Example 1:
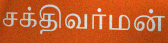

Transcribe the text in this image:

சக்திவர்மன்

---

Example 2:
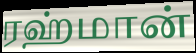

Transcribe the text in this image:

ரஹ்மான்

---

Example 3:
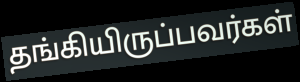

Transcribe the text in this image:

தங்கியிருப்பவர்கள்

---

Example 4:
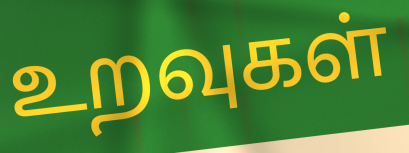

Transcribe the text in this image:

உறவுகள்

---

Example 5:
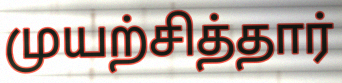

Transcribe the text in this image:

முயற்சித்தார்